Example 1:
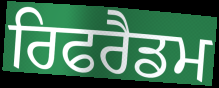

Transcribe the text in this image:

ਰਿਫਰੈਡਮ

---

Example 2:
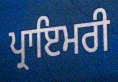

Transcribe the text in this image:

ਪ੍ਰਾਇਮਰੀ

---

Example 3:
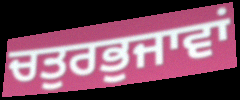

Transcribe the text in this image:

ਚਤੁਰਭੁਜਾਵਾਂ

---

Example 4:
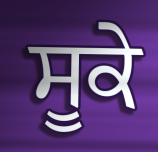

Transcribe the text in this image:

ਸੂਕੇ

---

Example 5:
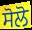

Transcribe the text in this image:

ਸੋਲੋ